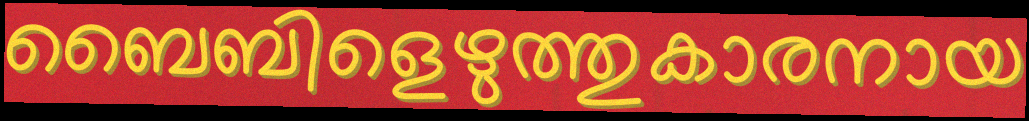
ബൈബിളെഴുത്തുകാരനായ